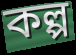
কল্প